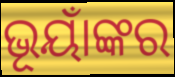
ଭୂୟାଁଙ୍କର